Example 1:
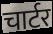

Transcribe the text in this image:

चार्टर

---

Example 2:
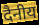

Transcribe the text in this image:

दैनीय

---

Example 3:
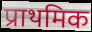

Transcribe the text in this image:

प्राथमिक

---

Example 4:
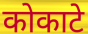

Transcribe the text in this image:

कोकाटे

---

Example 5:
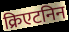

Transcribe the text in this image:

क्रिएटनिन